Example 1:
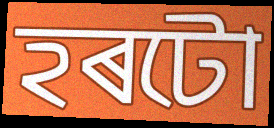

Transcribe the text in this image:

হৰটো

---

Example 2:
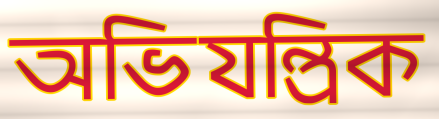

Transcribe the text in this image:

অভিযন্ত্ৰিক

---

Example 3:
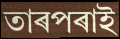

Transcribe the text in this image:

তাৰপৰাই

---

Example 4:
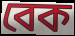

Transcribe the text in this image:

বেক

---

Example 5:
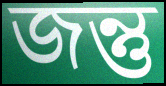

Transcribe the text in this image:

জন্তু